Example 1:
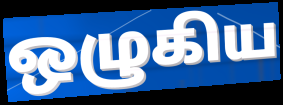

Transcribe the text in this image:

ஒழுகிய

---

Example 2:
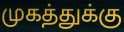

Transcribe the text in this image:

முகத்துக்கு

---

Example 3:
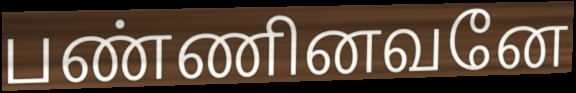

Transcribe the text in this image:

பண்ணினவனே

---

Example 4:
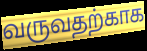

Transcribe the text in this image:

வருவதற்காக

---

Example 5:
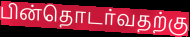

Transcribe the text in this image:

பின்தொடர்வதற்கு